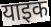
याइक